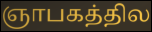
ஞாபகத்தில